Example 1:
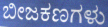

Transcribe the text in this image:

ಬೀಜಕಣಗಳು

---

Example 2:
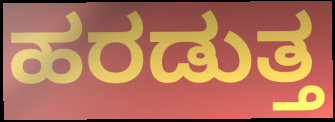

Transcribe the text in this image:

ಹರಡುತ್ತ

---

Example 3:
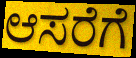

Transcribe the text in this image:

ಆಸರೆಗೆ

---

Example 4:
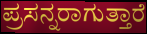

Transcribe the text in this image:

ಪ್ರಸನ್ನರಾಗುತ್ತಾರೆ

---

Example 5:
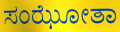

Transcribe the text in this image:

ಸಂಝೋತಾ